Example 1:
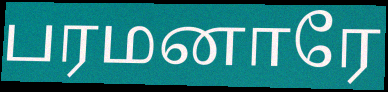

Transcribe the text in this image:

பரமனாரே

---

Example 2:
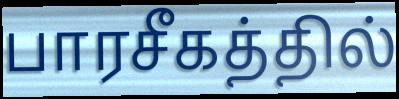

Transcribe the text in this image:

பாரசீகத்தில்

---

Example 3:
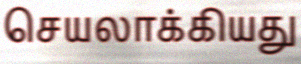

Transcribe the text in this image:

செயலாக்கியது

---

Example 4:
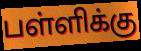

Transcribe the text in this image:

பள்ளிக்கு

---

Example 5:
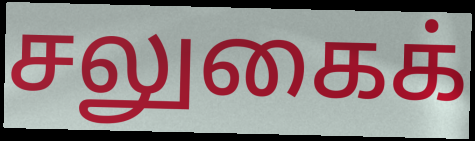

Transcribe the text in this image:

சலுகைக்